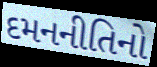
દમનનીતિનો